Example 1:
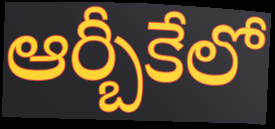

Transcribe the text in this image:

ఆర్బీకేలో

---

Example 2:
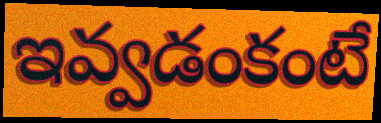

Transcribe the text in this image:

ఇవ్వడంకంటే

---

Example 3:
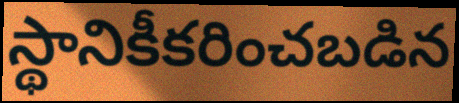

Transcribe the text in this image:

స్థానికీకరించబడిన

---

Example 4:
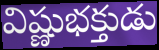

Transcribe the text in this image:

విష్ణుభక్తుడు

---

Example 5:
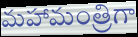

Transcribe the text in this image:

మహామంత్రిగా